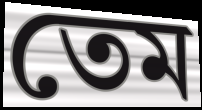
তেম